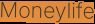
Moneylife